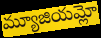
మ్యూజియమ్లో